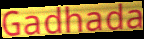
Gadhada